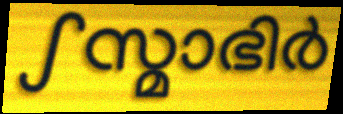
ഽസ്മാഭിർ